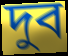
দুব